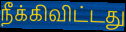
நீக்கிவிட்டது